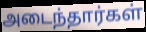
அடைந்தார்கள்